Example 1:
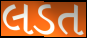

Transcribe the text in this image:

લડત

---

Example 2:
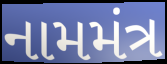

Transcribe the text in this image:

નામમંત્ર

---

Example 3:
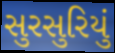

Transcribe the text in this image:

સુરસુરિયું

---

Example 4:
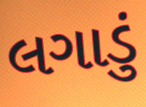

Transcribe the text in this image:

લગાડું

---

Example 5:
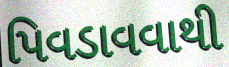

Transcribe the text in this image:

પિવડાવવાથી